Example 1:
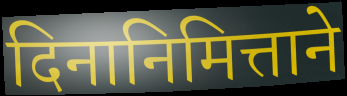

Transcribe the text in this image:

दिनानिमित्ताने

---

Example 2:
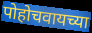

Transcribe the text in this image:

पोहोचवायच्या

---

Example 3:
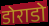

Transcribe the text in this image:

डोराडो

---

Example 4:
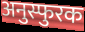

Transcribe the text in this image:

अनुस्फुरक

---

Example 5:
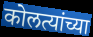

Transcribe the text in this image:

कोलत्यांच्या